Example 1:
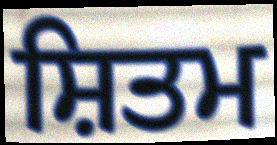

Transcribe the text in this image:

ਸ਼ਿਤਮ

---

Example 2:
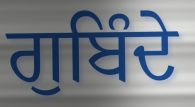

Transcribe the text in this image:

ਗੁਬਿੰਦੇ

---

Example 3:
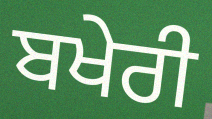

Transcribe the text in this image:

ਬਖੇਰੀ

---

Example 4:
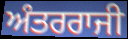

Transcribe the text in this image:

ਅੰਤਰਰਾਜੀ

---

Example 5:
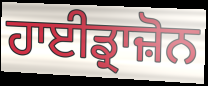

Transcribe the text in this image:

ਹਾਈਡ੍ਰਾਜ਼ੋਨ